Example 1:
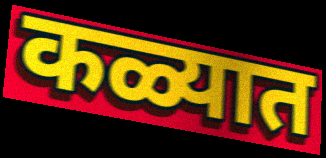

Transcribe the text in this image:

कळ्यात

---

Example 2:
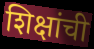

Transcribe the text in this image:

शिक्षांची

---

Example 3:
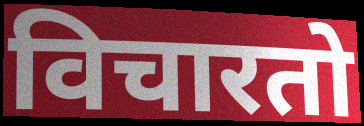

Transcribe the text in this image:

विचारतो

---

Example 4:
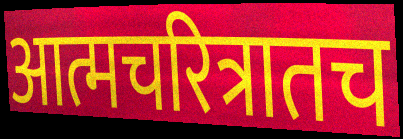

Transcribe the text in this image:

आत्मचरित्रातच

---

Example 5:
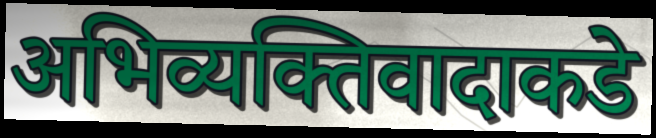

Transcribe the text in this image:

अभिव्यक्तिवादाकडे